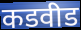
कडवीड